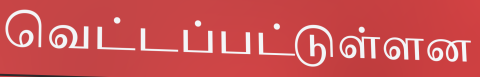
வெட்டப்பட்டுள்ளன